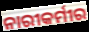
ନାରୀକର୍ମୀର